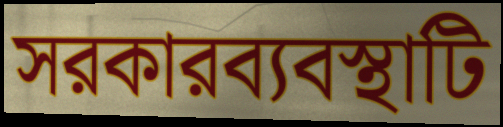
সরকারব্যবস্থাটি